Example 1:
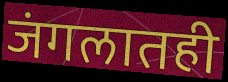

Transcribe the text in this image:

जंगलातही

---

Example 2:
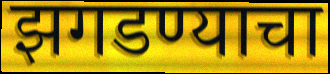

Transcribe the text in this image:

झगडण्याचा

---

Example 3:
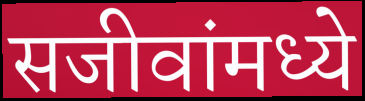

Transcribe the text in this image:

सजीवांमध्ये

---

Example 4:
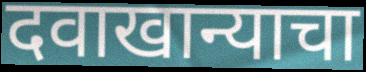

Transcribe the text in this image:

दवाखान्याचा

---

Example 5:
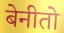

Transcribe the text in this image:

बेनीतो